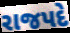
રાજપદે